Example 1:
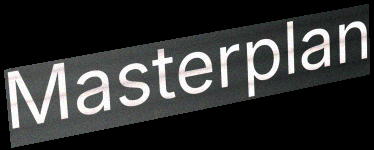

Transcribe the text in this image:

Masterplan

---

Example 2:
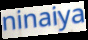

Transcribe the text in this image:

ninaiya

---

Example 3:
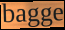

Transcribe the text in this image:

bagge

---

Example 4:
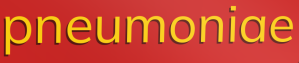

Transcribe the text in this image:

pneumoniae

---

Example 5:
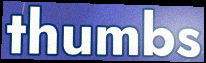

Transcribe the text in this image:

thumbs